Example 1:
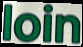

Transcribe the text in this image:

loin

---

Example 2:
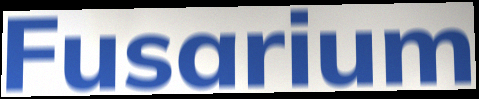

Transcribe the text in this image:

Fusarium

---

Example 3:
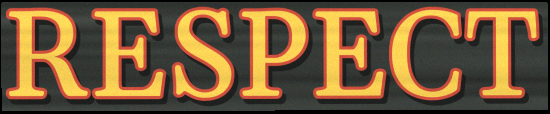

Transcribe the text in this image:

RESPECT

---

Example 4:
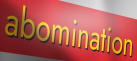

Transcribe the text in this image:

abomination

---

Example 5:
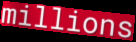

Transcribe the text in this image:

millions